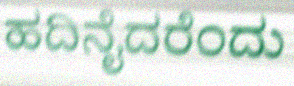
ಹದಿನೈದರೆಂದು